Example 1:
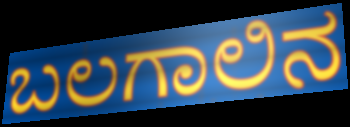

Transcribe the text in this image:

ಬಲಗಾಲಿನ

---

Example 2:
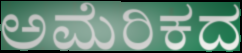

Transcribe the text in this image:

ಅಮೆರಿಕದ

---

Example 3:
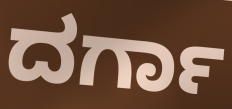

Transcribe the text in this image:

ದರ್ಗಾ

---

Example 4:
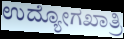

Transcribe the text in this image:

ಉದ್ಯೋಗಖಾತ್ರಿ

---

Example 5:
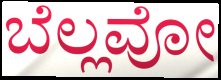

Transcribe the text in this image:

ಬೆಲ್ಲವೋ